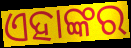
ଏହାଙ୍କର